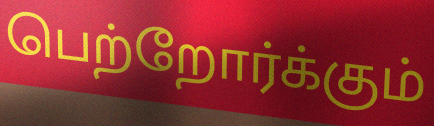
பெற்றோர்க்கும்